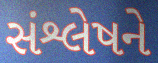
સંશ્લેષને